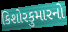
કિશોરકુમારનો